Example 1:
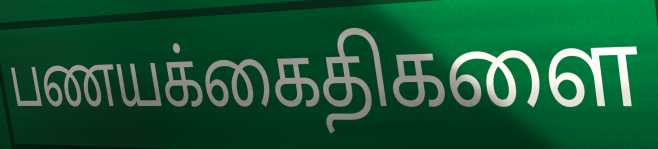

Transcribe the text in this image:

பணயக்கைதிகளை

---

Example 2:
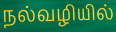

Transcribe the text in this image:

நல்வழியில்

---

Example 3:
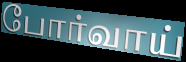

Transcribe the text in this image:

போர்வாய்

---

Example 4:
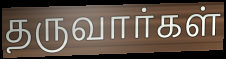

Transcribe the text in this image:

தருவார்கள்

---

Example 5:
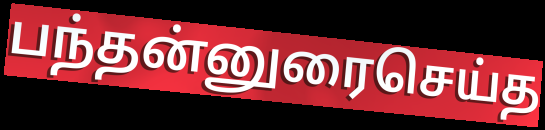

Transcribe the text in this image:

பந்தன்னுரைசெய்த